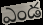
ఎండ